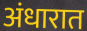
अंधारात